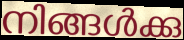
നിങ്ങൾക്കു